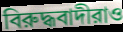
বিরুদ্ধবাদীরাও